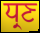
ਧ੍ਰਣ